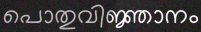
പൊതുവിജ്ഞാനം